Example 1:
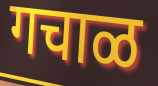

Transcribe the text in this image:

गचाळ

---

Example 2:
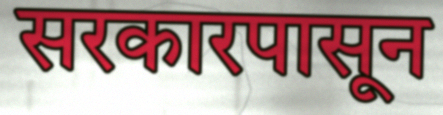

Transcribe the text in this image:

सरकारपासून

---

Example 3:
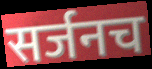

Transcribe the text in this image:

सर्जनच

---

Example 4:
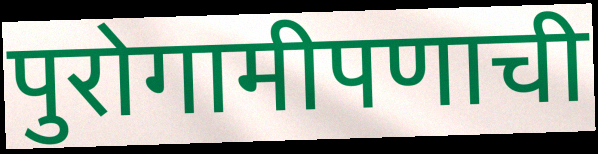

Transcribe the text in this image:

पुरोगामीपणाची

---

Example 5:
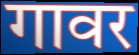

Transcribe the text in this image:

गावर